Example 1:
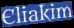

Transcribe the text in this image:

Eliakim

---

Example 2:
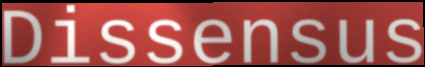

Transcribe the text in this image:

Dissensus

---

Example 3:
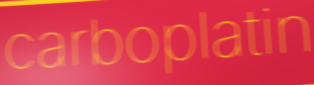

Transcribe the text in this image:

carboplatin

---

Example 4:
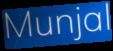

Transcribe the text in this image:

Munjal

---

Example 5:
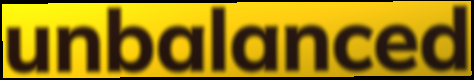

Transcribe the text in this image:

unbalanced